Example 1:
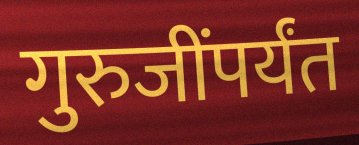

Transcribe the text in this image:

गुरुजींपर्यंत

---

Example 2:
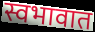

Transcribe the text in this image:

स्वभावात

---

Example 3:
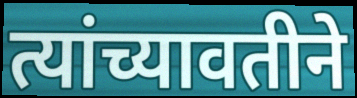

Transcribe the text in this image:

त्यांच्यावतीने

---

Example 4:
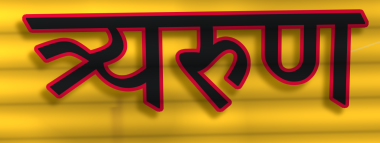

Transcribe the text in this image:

त्र्यरुण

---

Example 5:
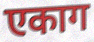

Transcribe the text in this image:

एकाग